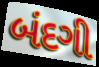
બંદગી